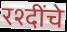
रश्दींचे